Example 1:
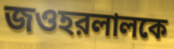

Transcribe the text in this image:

জওহরলালকে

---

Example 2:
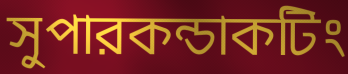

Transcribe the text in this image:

সুপারকন্ডাকটিং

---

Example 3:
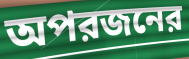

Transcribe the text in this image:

অপরজনের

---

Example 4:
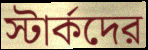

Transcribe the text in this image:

স্টার্কদের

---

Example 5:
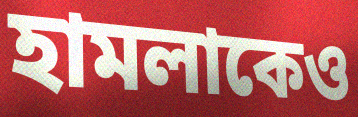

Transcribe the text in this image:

হামলাকেও